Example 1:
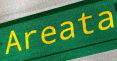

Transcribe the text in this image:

Areata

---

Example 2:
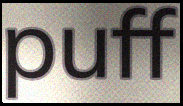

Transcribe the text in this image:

puff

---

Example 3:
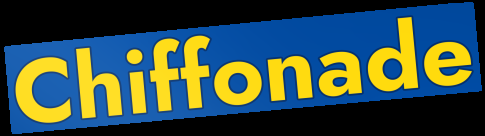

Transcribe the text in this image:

Chiffonade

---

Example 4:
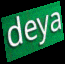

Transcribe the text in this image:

deya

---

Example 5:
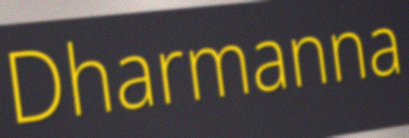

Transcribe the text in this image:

Dharmanna